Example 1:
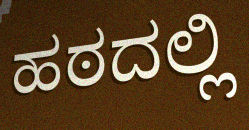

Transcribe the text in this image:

ಹಠದಲ್ಲಿ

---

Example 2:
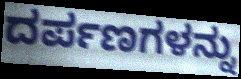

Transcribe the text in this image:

ದರ್ಪಣಗಳನ್ನು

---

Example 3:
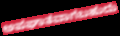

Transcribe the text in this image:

ಅಪಘಾತವಾಗಬಹುದು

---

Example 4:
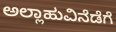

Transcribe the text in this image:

ಅಲ್ಲಾಹುವಿನೆಡೆಗೆ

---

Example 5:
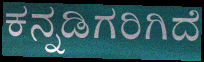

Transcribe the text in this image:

ಕನ್ನಡಿಗರಿಗಿದೆ